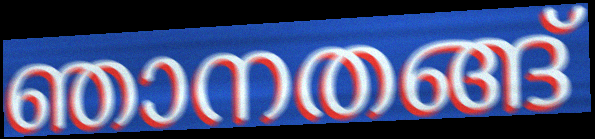
ഞാനതങ്ങ്